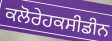
ਕਲੋਰੇਹਕਸੀਡੀਨ